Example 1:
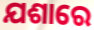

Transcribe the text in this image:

ଯଶାରେ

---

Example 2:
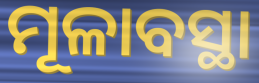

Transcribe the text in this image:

ମୂଳାବସ୍ଥା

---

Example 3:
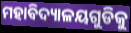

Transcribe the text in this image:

ମହାବିଦ୍ୟାଳୟଗୁଡିକୁ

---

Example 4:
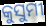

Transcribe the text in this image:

କୁସୁମୀ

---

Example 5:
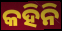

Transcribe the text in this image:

କହିନି